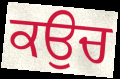
ਕਉਚ